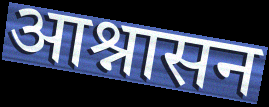
आश्नासन